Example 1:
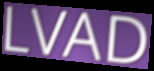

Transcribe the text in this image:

LVAD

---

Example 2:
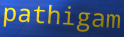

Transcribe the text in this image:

pathigam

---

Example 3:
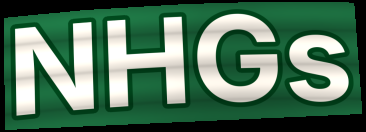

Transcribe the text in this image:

NHGs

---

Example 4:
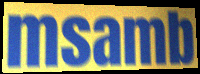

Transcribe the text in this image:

msamb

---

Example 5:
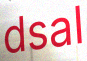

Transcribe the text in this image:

dsal